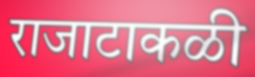
राजाटाकळी